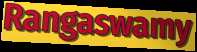
Rangaswamy